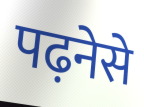
पढ़नेसे